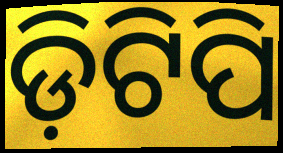
ଡ଼ିଟିପି